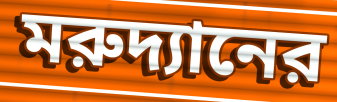
মরুদ্যানের